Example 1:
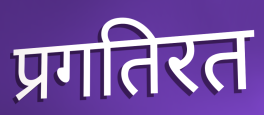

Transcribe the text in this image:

प्रगतिरत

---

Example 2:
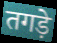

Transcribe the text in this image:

तगड़े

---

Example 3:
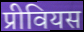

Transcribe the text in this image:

प्रीवियस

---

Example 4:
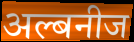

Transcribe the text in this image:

अल्बनीज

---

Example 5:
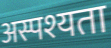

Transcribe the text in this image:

अस्पश्यता